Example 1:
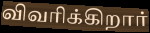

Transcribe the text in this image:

விவரிக்கிறார்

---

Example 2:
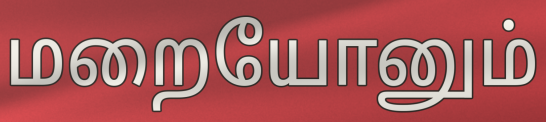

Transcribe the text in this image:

மறையோனும்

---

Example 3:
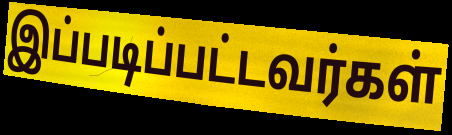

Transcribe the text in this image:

இப்படிப்பட்டவர்கள்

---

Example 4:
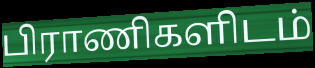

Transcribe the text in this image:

பிராணிகளிடம்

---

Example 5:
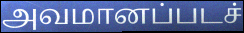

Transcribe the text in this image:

அவமானப்படச்